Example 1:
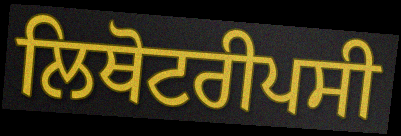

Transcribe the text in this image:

ਲਿਥੋਟਰੀਪਸੀ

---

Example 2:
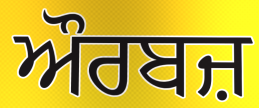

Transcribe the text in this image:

ਔਰਬਜ਼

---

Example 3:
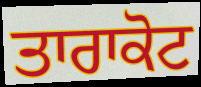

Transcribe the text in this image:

ਤਾਰਾਕੋਟ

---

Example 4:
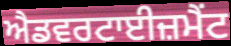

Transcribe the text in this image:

ਐਡਵਰਟਾਈਜ਼ਮੈਂਟ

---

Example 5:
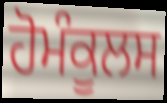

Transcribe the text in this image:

ਹੋਮੰਕੂਲਸ